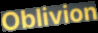
Oblivion